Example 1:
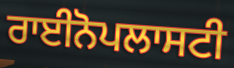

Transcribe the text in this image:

ਰਾਈਨੋਪਲਾਸਟੀ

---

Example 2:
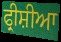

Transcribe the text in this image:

ਫ੍ਰੀਸ਼ੀਆ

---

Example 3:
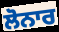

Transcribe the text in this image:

ਲੋਨਾਰ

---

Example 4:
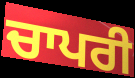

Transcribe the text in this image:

ਚਾਪਰੀ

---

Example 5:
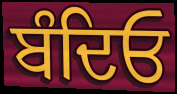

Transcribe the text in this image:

ਬੰਦਿਓ